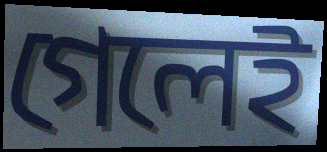
গেলেই